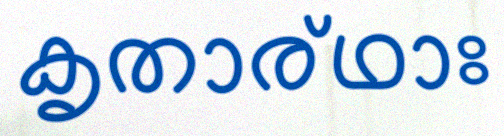
കൃതാര്ഥാഃ